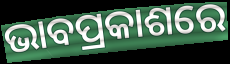
ଭାବପ୍ରକାଶରେ